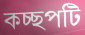
কচ্ছপটি